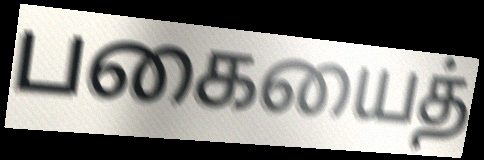
பகையைத்